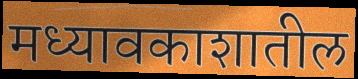
मध्यावकाशातील